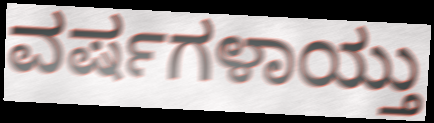
ವರ್ಷಗಳಾಯ್ತು